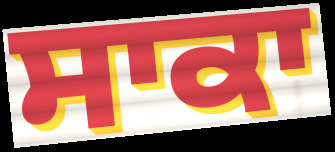
ਸਾਕਾ